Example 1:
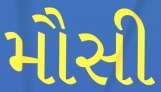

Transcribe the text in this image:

મૌસી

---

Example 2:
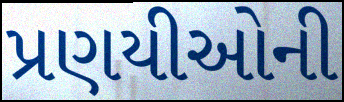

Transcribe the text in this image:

પ્રણયીઓની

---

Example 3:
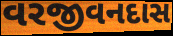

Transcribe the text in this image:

વરજીવનદાસ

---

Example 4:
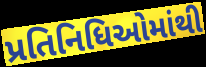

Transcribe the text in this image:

પ્રતિનિધિઓમાંથી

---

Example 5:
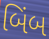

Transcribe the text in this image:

બિંબ